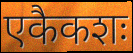
एकैकशः